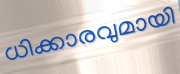
ധിക്കാരവുമായി